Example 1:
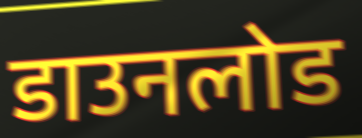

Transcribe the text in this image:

डाउनलोड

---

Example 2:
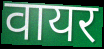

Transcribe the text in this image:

वायर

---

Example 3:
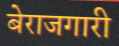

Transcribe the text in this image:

बेराजगारी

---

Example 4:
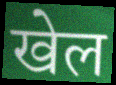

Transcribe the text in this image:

खेल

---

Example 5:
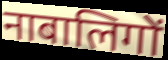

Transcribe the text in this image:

नाबालिगों